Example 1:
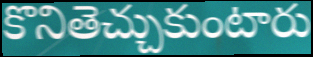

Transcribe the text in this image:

కొనితెచ్చుకుంటారు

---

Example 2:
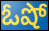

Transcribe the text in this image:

ఓషో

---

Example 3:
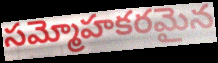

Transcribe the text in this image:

సమ్మోహకరమైన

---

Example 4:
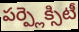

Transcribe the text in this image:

పర్ప్లెక్సిటీ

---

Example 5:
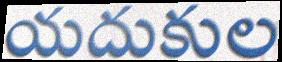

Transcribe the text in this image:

యదుకుల